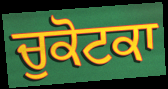
ਚੁਕੋਟਕਾ